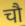
चौ